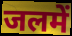
जलमें